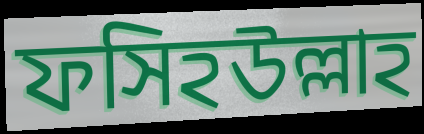
ফসিহউল্লাহ